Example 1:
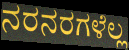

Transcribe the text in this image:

ನರನರಗಳೆಲ್ಲ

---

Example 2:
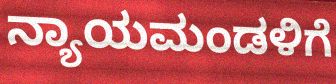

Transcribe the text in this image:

ನ್ಯಾಯಮಂಡಳಿಗೆ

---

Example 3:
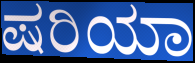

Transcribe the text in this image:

ಷರಿಯಾ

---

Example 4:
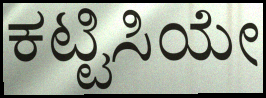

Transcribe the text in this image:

ಕಟ್ಟಿಸಿಯೇ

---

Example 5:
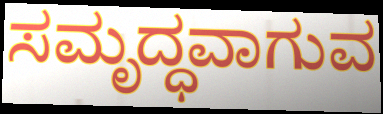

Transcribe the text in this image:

ಸಮೃದ್ಧವಾಗುವ